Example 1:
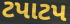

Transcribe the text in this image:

ટપાટપ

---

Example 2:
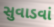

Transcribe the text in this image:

સુવાડવાં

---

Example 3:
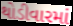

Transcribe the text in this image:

થોડીવારમાં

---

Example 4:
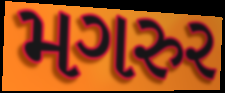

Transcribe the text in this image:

મગરુર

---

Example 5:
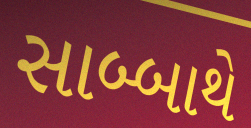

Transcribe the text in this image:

સાબ્બાથે